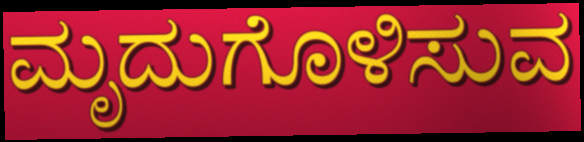
ಮೃದುಗೊಳಿಸುವ